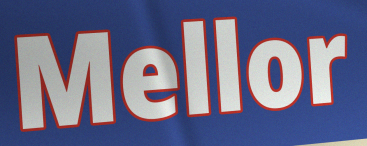
Mellor